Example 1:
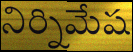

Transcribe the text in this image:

నిర్నిమేష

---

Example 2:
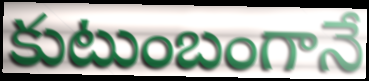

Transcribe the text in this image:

కుటుంబంగానే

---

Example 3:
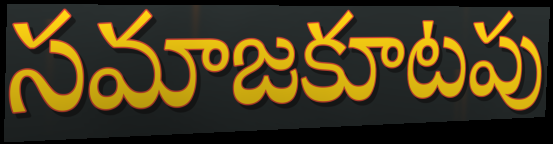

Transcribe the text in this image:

సమాజకూటపు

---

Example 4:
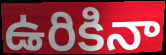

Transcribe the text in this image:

ఉరికినా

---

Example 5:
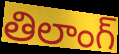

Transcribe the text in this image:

తిలాంగ్